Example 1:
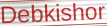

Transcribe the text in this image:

Debkishor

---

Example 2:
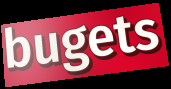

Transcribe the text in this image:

bugets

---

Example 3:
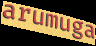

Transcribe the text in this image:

arumuga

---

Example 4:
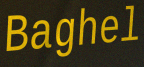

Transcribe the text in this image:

Baghel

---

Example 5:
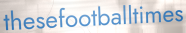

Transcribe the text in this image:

thesefootballtimes